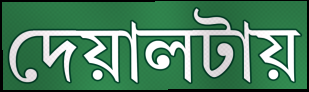
দেয়ালটায়